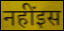
नहींइस